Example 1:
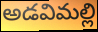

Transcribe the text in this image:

అడవిమల్లి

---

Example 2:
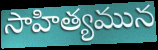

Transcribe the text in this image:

సాహిత్యమున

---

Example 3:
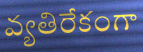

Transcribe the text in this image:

వ్యతిరేకంగా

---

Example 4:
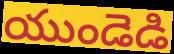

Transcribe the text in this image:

యుండెడి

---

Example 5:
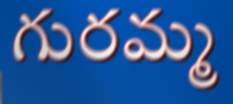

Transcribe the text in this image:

గురమ్మ